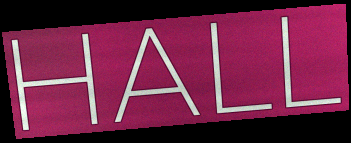
HALL